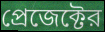
প্রেজেক্টের